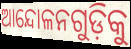
ଆନ୍ଦୋଳନଗୁଡ଼ିକୁ